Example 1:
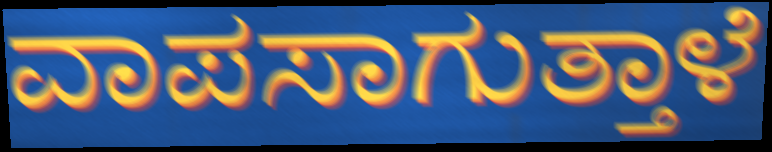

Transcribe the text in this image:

ವಾಪಸಾಗುತ್ತಾಳೆ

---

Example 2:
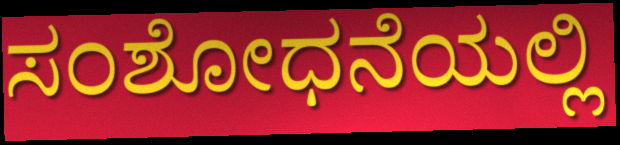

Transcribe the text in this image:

ಸಂಶೋಧನೆಯಲ್ಲಿ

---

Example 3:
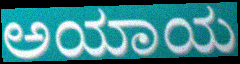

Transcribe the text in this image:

ಅಯಾಯ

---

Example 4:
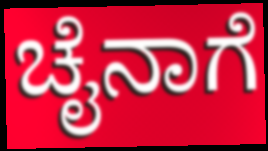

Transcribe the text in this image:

ಚೈನಾಗೆ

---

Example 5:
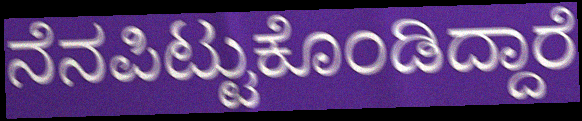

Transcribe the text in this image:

ನೆನಪಿಟ್ಟುಕೊಂಡಿದ್ದಾರೆ